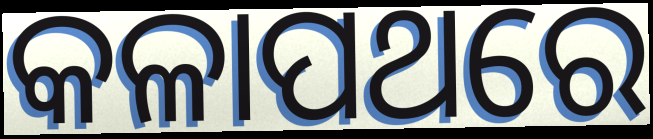
କଳାପଥରେ